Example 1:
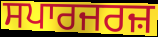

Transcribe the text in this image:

ਸਪਾਰਜਰਜ਼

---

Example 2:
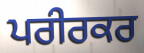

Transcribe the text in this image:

ਪਰੀਰਕਰ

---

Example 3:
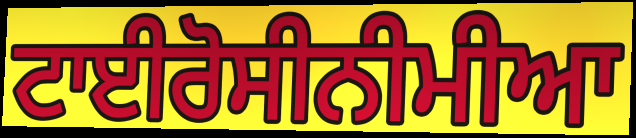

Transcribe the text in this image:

ਟਾਈਰੋਸੀਨੀਮੀਆ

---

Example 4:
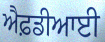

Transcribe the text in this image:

ਐਫ਼ਡੀਆਈ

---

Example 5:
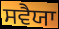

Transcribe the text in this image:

ਸਵੈਯਾ